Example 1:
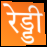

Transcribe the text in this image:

रेड्डी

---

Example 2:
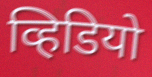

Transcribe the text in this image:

व्हिडियो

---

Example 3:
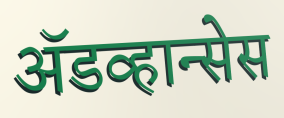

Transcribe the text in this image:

ॲडव्हान्सेस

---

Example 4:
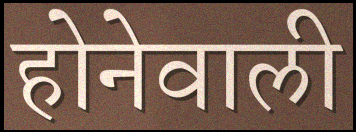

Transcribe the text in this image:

होनेवाली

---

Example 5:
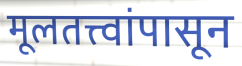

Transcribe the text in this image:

मूलतत्त्वांपासून